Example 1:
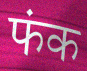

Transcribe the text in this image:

फंक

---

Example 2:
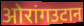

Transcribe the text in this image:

ओरांगउटान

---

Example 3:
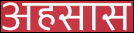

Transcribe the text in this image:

अहसास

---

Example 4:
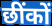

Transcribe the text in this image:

छींकों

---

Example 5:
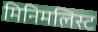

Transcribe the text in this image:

मिनिमलिस्ट